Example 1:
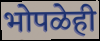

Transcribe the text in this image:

भोपळेही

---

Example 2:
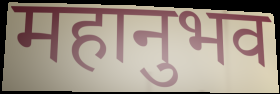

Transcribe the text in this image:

महानुभव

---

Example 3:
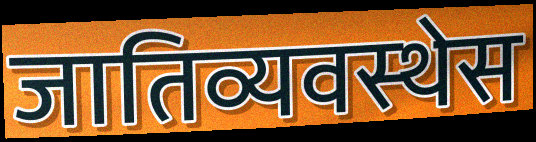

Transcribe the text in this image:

जातिव्यवस्थेस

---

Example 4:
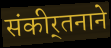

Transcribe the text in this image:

संकीर्तनाने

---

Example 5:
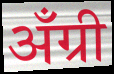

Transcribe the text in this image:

अँग्री